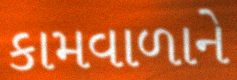
કામવાળાને